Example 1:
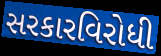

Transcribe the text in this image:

સરકારવિરોધી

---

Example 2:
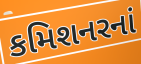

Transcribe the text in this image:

કમિશનરનાં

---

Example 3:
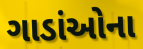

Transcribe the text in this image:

ગાડાંઓના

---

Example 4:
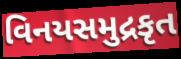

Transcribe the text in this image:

વિનયસમુદ્રકૃત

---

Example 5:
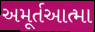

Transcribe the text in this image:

અમૂર્તઆત્મા